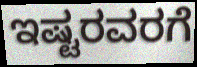
ಇಷ್ಟರವರಗೆ